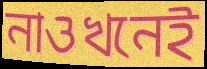
নাওখনেই